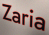
Zaria